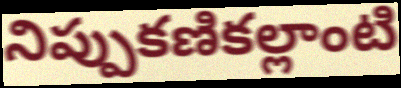
నిప్పుకణికల్లాంటి